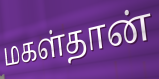
மகள்தான்